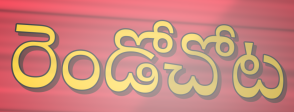
రెండోచోట